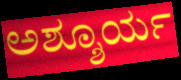
ಅಶ್ಶೂರ್ಯ